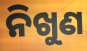
ନିଖୁଣ